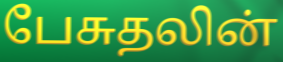
பேசுதலின்